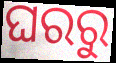
ଘରରୁ